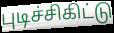
புடிச்சிகிட்டு